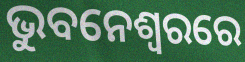
ଭୁବନେଶ୍ୱରରେ